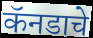
कॅनडाचे